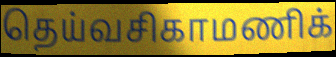
தெய்வசிகாமணிக்